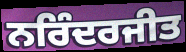
ਨਰਿੰਦਰਜੀਤ